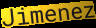
Jimenez